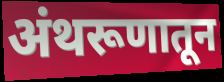
अंथरूणातून